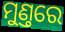
ମୁଣ୍ତରେ